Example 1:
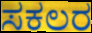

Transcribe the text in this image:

ಸಕಲರ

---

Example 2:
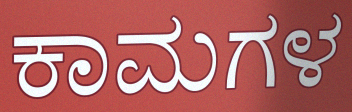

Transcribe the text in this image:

ಕಾಮಗಳ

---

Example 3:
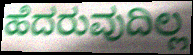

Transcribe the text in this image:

ಹೆದರುವುದಿಲ್ಲ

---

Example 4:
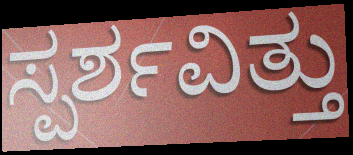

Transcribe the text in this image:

ಸ್ಪರ್ಶವಿತ್ತು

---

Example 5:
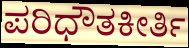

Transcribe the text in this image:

ಪರಿಧೌತಕೀರ್ತಿ